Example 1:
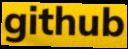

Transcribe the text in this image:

github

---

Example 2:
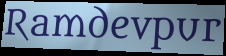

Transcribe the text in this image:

Ramdevpur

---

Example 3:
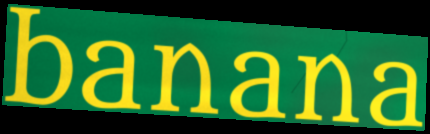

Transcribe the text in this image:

banana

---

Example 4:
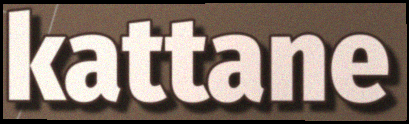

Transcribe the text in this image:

kattane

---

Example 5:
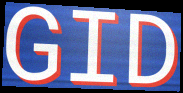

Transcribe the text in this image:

GID